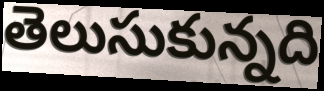
తెలుసుకున్నది